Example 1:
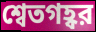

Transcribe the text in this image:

শ্বেতগহ্বর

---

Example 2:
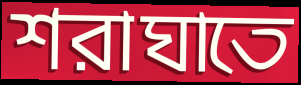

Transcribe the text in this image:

শরাঘাতে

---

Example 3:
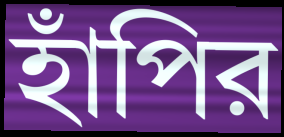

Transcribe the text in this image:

হাঁপির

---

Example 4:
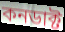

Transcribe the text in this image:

কনডাক্ট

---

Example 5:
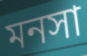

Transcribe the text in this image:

মনসা